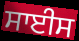
ਸਾਈਸ